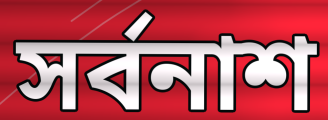
সর্বনাশ